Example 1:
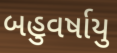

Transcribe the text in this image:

બહુવર્ષાયુ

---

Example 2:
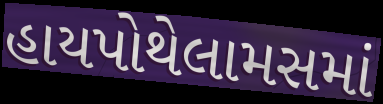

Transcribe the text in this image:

હાયપોથેલામસમાં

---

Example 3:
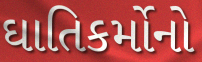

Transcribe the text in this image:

ઘાતિકર્મોનો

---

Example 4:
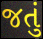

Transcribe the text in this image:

જતું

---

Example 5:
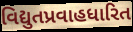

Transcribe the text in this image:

વિદ્યુતપ્રવાહધારિત